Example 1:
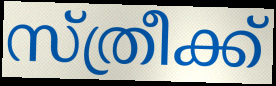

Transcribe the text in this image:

സ്ത്രീക്ക്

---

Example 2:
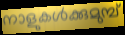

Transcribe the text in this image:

നാളുകൾക്കുമുമ്പ്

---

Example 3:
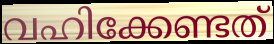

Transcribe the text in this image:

വഹിക്കേണ്ടത്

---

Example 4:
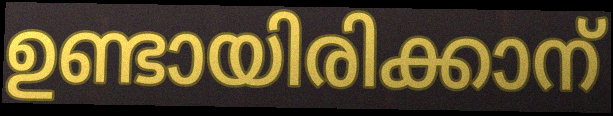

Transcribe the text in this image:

ഉണ്ടായിരിക്കാന്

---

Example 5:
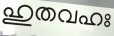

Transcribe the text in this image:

ഹുതവഹഃ